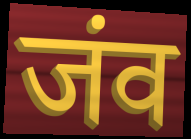
जंव